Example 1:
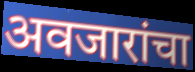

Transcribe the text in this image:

अवजारांचा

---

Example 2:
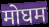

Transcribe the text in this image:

मोघम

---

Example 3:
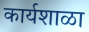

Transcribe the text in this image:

कार्यशाळा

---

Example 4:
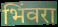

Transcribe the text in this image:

भिंवरा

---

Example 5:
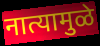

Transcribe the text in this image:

नात्यामुळे